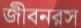
জীবনরস